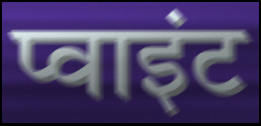
प्‍वाइंट